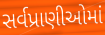
સર્વપ્રાણીઓમાં